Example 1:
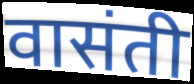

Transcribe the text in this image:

वासंती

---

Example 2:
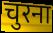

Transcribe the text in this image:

चुरना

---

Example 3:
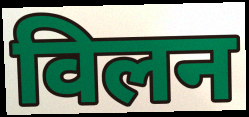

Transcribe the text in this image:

विलन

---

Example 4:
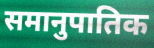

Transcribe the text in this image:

समानुपातिक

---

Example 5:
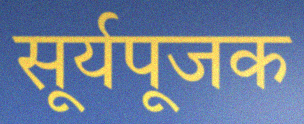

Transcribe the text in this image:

सूर्यपूजक